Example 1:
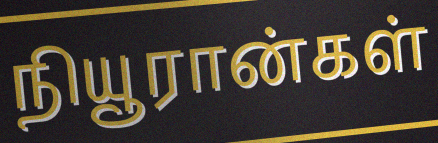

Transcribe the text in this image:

நியூரான்கள்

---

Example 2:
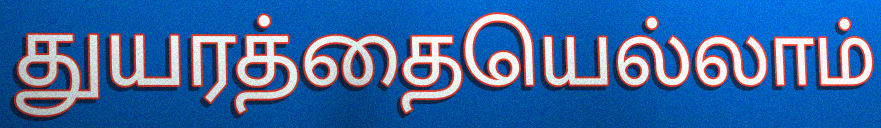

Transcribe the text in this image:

துயரத்தையெல்லாம்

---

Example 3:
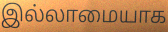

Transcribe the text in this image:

இல்லாமையாக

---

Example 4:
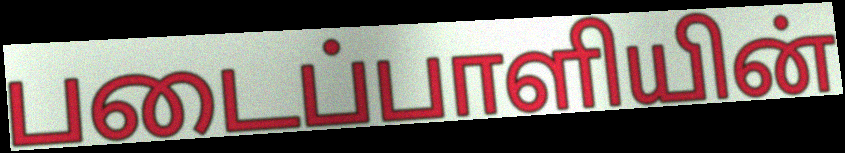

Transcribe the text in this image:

படைப்பாளியின்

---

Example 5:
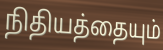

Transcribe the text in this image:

நிதியத்தையும்